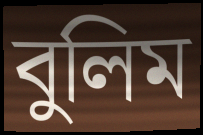
বুলিম